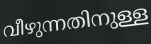
വീഴുന്നതിനുള്ള